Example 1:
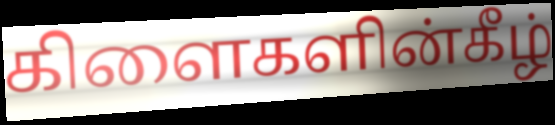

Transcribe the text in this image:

கிளைகளின்கீழ்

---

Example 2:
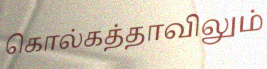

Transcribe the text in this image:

கொல்கத்தாவிலும்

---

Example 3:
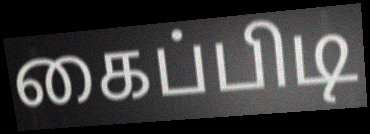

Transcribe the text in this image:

கைப்பிடி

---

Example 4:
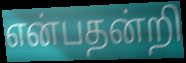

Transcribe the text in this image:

என்பதன்றி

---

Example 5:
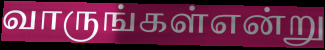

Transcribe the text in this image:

வாருங்கள்என்று